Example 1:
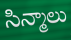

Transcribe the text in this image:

సిన్మాలు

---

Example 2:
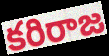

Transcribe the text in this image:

కరిరాజ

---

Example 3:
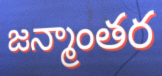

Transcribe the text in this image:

జన్మాంతర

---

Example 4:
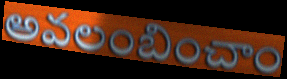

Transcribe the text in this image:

అవలంబించాం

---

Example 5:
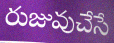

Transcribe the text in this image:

రుజువుచేసే